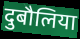
दुबौलिया